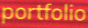
portfolio